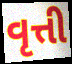
વૃત્તી